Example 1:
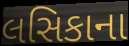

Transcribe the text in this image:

લસિકાના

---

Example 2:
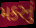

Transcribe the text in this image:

મકરનું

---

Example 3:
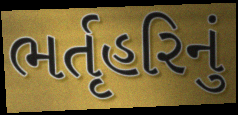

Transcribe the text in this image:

ભર્તૃહરિનું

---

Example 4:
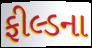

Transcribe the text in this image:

ફીલ્ડના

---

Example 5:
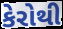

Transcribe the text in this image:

કેરોથી